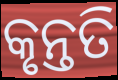
କୃନ୍ତତି